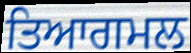
ਤਿਆਗਮਲ